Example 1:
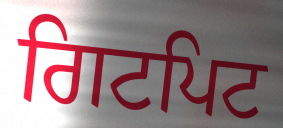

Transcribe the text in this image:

ਗਿਟਪਿਟ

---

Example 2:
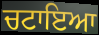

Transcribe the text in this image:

ਚਟਾਇਆ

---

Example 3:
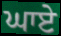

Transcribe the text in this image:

ਘਾਏ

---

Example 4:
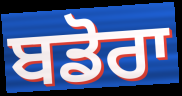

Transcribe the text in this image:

ਬਡੋਰਾ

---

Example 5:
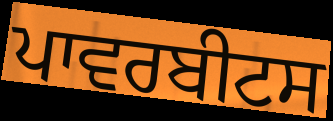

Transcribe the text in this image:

ਪਾਵਰਬੀਟਸ